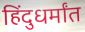
हिंदुधर्मांत